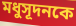
মধুসূদনকে